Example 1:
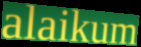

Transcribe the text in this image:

alaikum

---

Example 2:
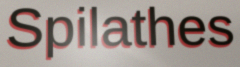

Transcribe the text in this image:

Spilathes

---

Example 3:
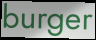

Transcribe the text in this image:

burger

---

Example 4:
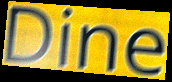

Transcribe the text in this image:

Dine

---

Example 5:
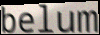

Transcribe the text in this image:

belum